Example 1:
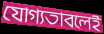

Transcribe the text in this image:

যোগ্যতাবলেই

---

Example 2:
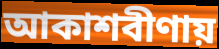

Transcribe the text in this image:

আকাশবীণায়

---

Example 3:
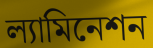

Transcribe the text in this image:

ল্যামিনেশন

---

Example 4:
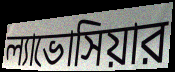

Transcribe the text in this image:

ল্যাভোসিয়ার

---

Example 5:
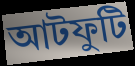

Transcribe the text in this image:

আটফুটি